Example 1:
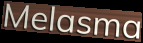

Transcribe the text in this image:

Melasma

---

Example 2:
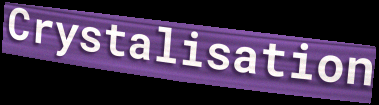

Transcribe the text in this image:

Crystalisation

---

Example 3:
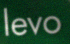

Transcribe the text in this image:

levo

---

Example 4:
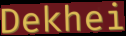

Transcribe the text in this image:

Dekhei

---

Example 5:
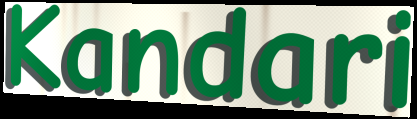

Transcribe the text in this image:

Kandari